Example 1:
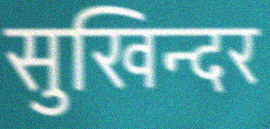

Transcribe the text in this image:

सुखिन्दर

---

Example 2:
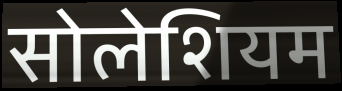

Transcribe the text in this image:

सोलेशियम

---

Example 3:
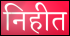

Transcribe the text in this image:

निहीत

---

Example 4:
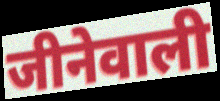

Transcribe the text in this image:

जीनेवाली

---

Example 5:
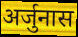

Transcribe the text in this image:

अर्जुनास